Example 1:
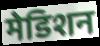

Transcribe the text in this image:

मेडिशन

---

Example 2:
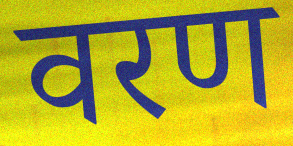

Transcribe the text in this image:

वरण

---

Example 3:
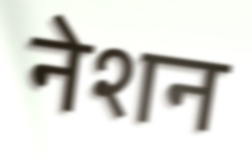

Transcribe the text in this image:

नेशन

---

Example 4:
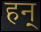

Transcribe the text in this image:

हन्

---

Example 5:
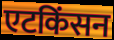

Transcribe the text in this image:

एटकिंसन